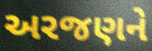
અરજણને